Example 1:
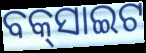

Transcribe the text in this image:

ବକ୍‌ସାଇଟ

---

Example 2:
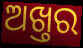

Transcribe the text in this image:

ଅଖ୍ତର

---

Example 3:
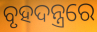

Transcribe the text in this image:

ବୃହଦନ୍ତ୍ରରେ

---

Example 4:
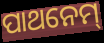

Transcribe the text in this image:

ପାଥନେମ୍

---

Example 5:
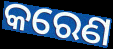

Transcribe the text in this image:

କରେଣ